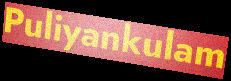
Puliyankulam